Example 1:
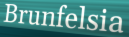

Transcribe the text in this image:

Brunfelsia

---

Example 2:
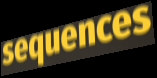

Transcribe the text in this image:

sequences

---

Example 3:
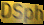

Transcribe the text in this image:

DSph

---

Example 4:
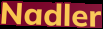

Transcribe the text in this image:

Nadler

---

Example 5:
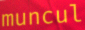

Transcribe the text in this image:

muncul